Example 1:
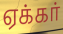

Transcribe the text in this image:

ஏக்கர்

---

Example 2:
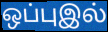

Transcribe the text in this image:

ஒப்புஇல்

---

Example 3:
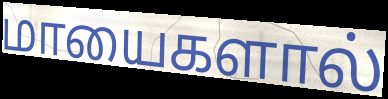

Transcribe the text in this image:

மாயைகளால்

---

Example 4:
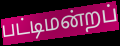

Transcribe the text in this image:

பட்டிமன்றப்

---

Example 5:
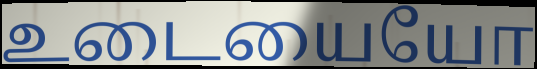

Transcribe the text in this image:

உடையையோ